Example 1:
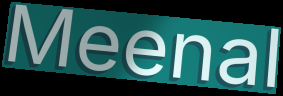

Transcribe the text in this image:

Meenal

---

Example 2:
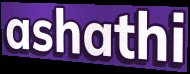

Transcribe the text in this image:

ashathi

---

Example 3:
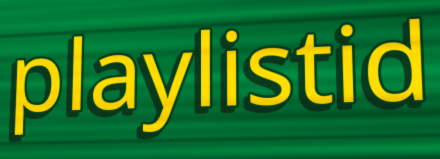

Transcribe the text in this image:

playlistid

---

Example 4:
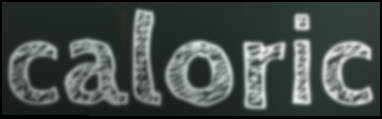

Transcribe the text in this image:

caloric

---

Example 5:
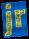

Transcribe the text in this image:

jr